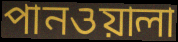
পানওয়ালা